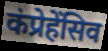
कंप्रेहेंसिव